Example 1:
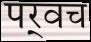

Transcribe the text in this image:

पर्वच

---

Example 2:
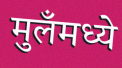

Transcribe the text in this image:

मुलँमध्ये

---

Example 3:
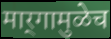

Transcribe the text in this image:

मार्गामुळेच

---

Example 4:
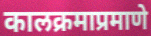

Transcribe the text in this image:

कालक्रमाप्रमाणे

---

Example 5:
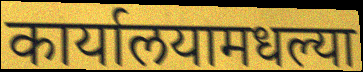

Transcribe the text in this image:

कार्यालयामधल्या